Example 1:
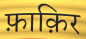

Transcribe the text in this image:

फ़ाक़िर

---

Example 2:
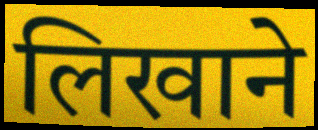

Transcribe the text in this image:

लिखाने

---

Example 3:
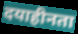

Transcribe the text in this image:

दयाहीनता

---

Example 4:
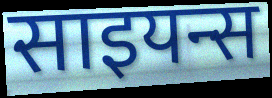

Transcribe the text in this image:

साइयन्स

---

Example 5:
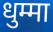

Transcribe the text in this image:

धुम्मा